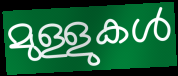
മുള്ളുകൾ